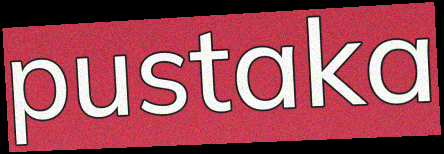
pustaka